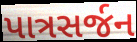
પાત્રસર્જન